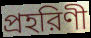
প্রহরিণী